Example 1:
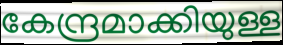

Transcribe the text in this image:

കേന്ദ്രമാക്കിയുള്ള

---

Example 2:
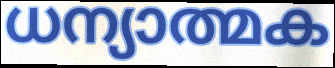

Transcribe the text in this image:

ധന്യാത്മക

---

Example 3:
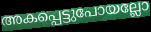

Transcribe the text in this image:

അകപ്പെട്ടുപോയല്ലോ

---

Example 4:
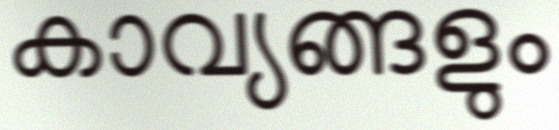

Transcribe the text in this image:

കാവ്യങ്ങളും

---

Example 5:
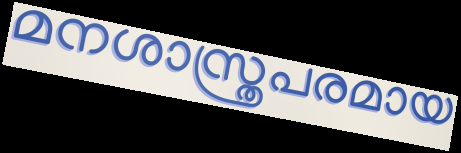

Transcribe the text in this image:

മനശാസ്ത്രപരമായ